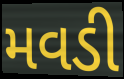
મવડી